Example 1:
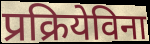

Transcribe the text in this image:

प्रक्रियेविना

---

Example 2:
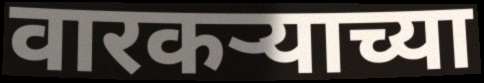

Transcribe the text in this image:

वारकऱ्याच्या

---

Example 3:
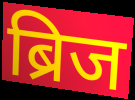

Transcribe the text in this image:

ब्रिज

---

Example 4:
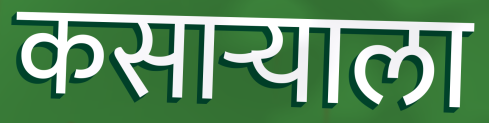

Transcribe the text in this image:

कसाऱ्याला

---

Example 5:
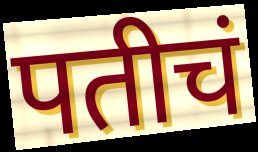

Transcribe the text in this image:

पतीचं